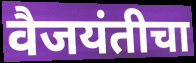
वैजयंतीचा